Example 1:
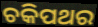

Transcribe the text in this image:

ଚକିପଥର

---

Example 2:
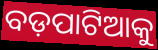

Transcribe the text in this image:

ବଡ଼ପାଟିଆକୁ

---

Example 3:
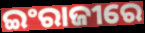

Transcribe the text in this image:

ଇଂରାଜୀରେ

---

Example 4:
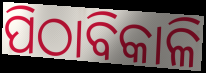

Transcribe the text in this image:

ପିଠାବିକାଳି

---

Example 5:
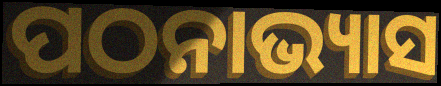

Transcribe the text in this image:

ପଠନାଭ୍ୟାସ